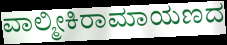
ವಾಲ್ಮೀಕಿರಾಮಾಯಣದ